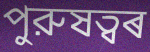
পুৰুষত্বৰ